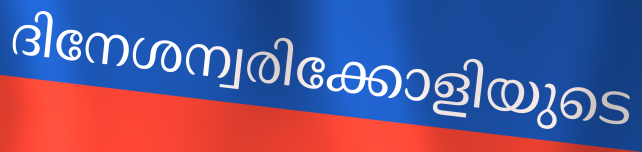
ദിനേശന്വരിക്കോളിയുടെ